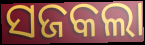
ସଜକଲା